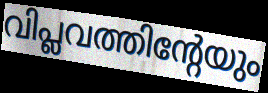
വിപ്ലവത്തിന്റേയും